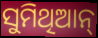
ସୁମିଥିଆନ୍